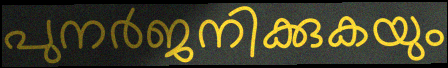
പുനർജനിക്കുകയും